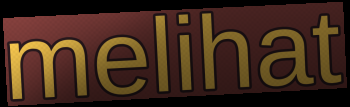
melihat